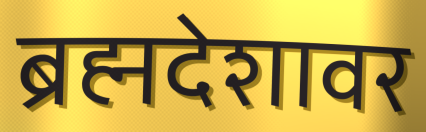
ब्रह्मदेशावर